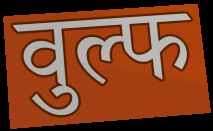
वुल्फ